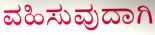
ವಹಿಸುವುದಾಗಿ